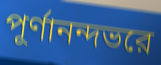
পূর্ণানন্দভরে